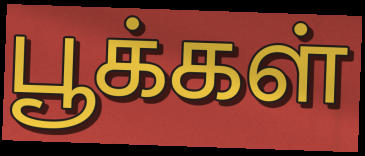
பூக்கள்